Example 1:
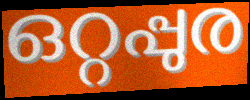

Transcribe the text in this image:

ഒറ്റപ്പുര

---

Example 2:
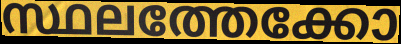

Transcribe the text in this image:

സ്ഥലത്തേക്കോ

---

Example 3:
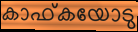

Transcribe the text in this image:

കാഫ്കയോടു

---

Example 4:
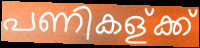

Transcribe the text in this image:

പണികള്ക്ക്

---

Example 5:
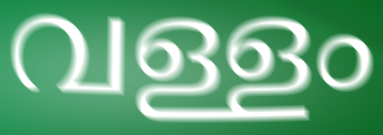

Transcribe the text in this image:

വള്ളം